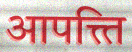
आपत्त्ति